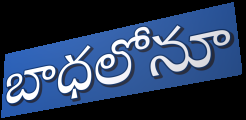
బాధలోనూ